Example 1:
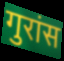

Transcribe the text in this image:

गुरांस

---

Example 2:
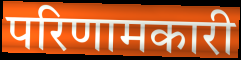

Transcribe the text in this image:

परिणामकारी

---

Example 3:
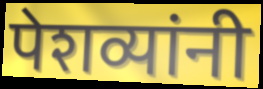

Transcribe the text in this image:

पेशव्यांनी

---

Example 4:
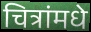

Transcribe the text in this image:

चित्रांमधे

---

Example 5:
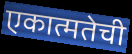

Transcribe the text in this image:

एकात्मतेची